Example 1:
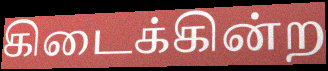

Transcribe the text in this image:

கிடைக்கின்ற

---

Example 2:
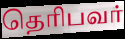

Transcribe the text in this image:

தெரிபவர்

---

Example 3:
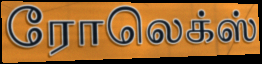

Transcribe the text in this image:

ரோலெக்ஸ்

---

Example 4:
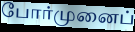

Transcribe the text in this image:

போர்முனைப்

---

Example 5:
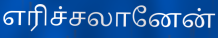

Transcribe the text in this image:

எரிச்சலானேன்